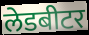
लेडबीटर